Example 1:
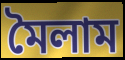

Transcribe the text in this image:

মৈলাম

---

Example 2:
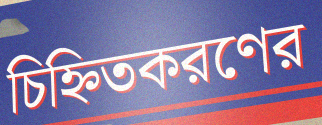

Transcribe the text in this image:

চিহ্নিতকরণের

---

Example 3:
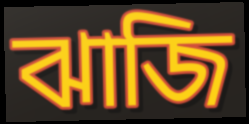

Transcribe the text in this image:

ঝাজি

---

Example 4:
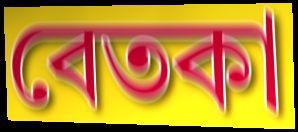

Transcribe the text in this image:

বেতকা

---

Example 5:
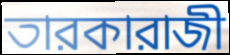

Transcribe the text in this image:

তারকারাজী